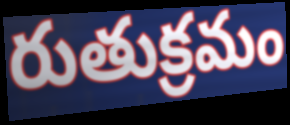
రుతుక్రమం